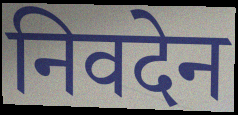
निवदेन